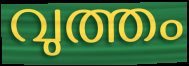
വുത്തം